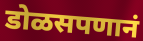
डोळसपणानं